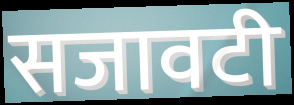
सजावटी